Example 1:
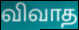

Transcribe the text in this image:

விவாத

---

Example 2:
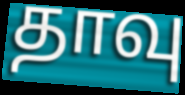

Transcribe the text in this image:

தாவு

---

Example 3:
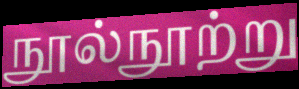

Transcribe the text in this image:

நூல்நூற்று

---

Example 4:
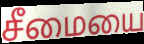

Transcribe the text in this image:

சீமையை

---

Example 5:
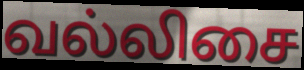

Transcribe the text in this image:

வல்லிசை